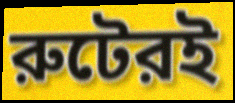
রুটেরই